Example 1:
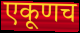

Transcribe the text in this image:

एकूणच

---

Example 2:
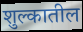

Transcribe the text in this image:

शुल्कातील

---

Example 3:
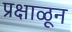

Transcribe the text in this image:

प्रक्षाळून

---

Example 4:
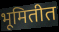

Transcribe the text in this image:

भूमितीत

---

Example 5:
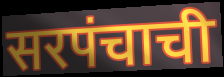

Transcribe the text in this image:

सरपंचाची